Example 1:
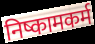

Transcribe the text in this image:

निष्कामकर्म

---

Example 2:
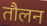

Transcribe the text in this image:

तौलन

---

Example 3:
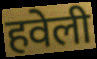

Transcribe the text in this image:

हवेली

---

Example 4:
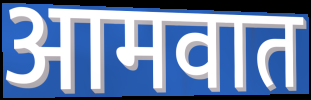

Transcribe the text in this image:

आमवात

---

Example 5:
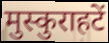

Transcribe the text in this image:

मुस्कुराहटें